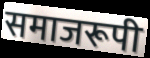
समाजरूपी